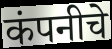
कंपनीचे